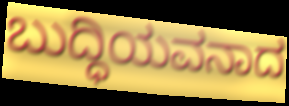
ಬುದ್ಧಿಯವನಾದ